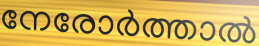
നേരോർത്താൽ